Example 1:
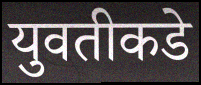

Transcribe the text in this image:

युवतीकडे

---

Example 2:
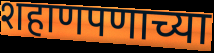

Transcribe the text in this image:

शहाणपणाच्या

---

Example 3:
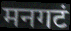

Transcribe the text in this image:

मनगटं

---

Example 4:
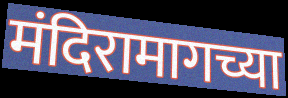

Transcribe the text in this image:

मंदिरामागच्या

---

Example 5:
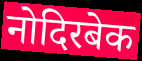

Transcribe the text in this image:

नोदिरबेक